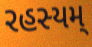
રહસ્યમ્